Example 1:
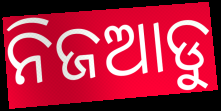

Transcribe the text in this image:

ନିଜଆଡୁ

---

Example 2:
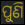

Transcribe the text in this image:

ପୁଣି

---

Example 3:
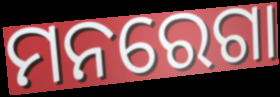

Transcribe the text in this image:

ମନରେଗା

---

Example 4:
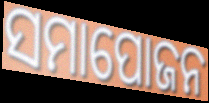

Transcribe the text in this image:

ସମାପୋଜନ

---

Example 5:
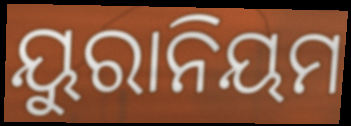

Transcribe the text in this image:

ୟୁରାନିୟମ